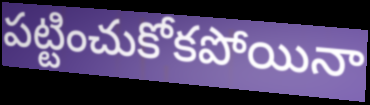
పట్టించుకోకపోయినా